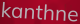
kanthne